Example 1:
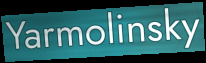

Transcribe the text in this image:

Yarmolinsky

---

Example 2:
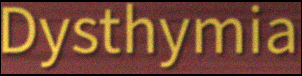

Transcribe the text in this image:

Dysthymia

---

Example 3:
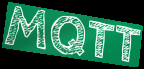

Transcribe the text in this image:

MQTT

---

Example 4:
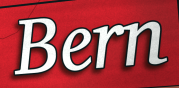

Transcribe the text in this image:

Bern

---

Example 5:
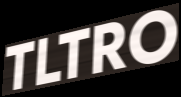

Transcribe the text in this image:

TLTRO